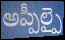
అప్పీల్పై